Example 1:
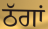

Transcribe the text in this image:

ਠੱਗਾਂ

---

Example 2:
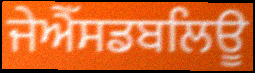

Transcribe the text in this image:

ਜੇਐੱਸਡਬਲਿਊ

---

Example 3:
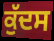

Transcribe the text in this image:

ਕੁੱਦਸ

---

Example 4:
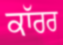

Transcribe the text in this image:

ਕਾੱਰਰ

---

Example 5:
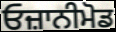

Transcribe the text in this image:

ਓਜ਼ਾਨੀਮੋਡ